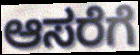
ಆಸರೆಗೆ